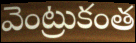
వెంట్రుకంత